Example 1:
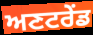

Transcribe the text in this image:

ਅਣਟਰੇਂਡ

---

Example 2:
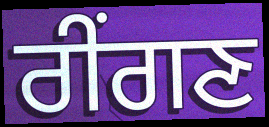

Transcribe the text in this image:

ਰੀਂਗਣ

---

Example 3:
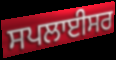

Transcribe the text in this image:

ਸਪਲਾਈਸਰ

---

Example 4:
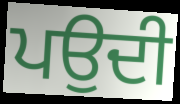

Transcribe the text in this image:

ਪਉਦੀ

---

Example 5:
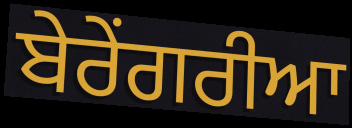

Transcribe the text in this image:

ਬੇਰੇਂਗਰੀਆ